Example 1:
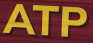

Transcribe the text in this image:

ATP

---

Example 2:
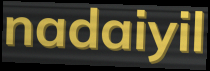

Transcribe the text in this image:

nadaiyil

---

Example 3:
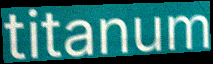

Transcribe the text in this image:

titanum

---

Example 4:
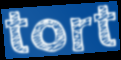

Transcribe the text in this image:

tort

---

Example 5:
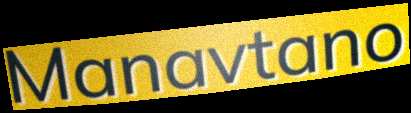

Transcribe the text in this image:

Manavtano